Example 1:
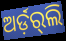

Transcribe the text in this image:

ଅର୍ଡ଼ର୍‌ଲି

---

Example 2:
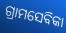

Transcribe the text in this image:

ଗ୍ରାମସେବିକା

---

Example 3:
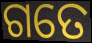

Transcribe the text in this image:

ଗତେ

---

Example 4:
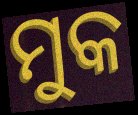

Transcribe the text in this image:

ମୁକ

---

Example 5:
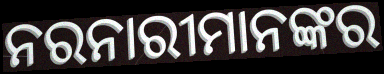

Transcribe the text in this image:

ନରନାରୀମାନଙ୍କର